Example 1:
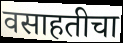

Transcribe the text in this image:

वसाहतीचा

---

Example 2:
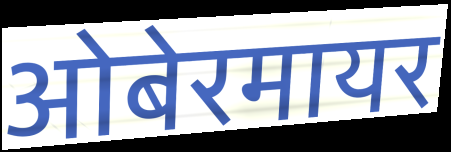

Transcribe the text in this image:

ओबेरमायर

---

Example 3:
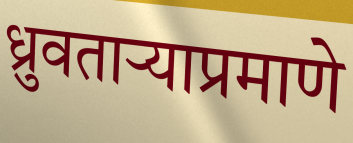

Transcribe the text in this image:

ध्रुवताऱ्याप्रमाणे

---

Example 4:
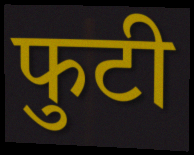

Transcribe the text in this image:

फुटी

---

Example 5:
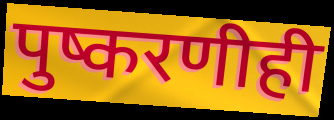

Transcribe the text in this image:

पुष्करणीही